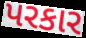
પરકાર